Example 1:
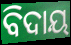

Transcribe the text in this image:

ବିଦାୟ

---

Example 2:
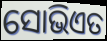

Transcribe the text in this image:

ସୋଭିଏତ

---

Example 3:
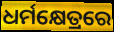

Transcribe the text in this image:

ଧର୍ମକ୍ଷେତ୍ରରେ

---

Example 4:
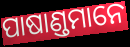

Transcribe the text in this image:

ପାଷାଣ୍ଡମାନେ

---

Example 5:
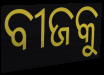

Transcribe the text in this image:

ବୀଜକୁ